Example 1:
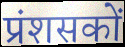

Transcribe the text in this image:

प्रंशसकों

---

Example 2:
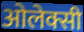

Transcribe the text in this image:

ओलेक्सी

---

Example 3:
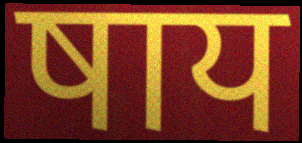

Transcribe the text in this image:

षाय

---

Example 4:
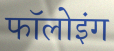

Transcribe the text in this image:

फॉलोइंग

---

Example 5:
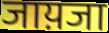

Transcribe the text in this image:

जाय़जा